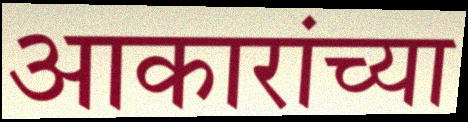
आकारांच्या